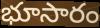
భూసారం